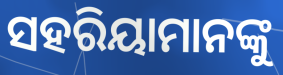
ସହରିୟାମାନଙ୍କୁ